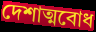
দেশাত্মবোধ